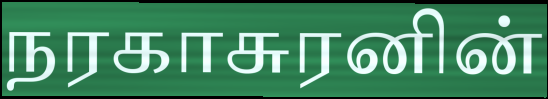
நரகாசுரனின்